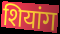
शियांग